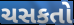
ચસકતો